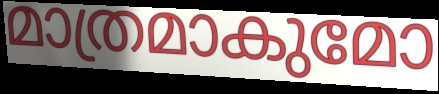
മാത്രമാകുമോ